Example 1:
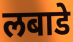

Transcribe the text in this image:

लबाडे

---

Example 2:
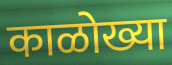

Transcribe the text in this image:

काळोख्या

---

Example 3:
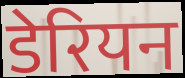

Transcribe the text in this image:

डेरियन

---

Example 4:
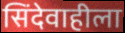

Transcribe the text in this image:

सिंदेवाहीला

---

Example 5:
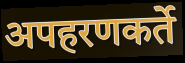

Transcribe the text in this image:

अपहरणकर्ते